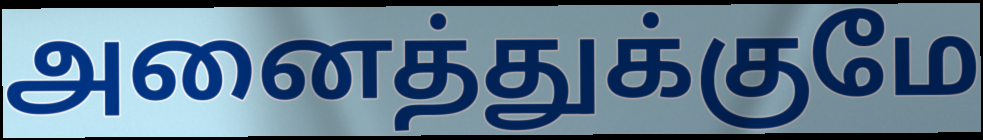
அனைத்துக்குமே